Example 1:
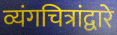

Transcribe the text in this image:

व्यंगचित्रांद्वारे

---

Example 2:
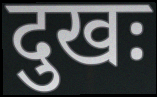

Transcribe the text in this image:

दुखः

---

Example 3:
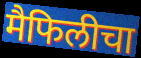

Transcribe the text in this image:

मैफिलीचा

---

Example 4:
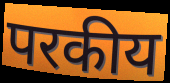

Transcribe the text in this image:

परकीय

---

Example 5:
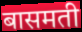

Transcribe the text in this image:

बासमती